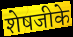
शेषजीके